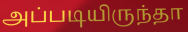
அப்படியிருந்தா